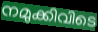
നമുക്കിവിടെ